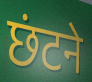
छंटने